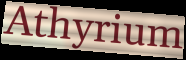
Athyrium